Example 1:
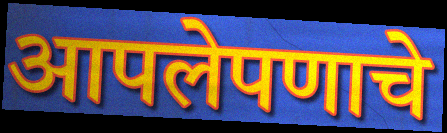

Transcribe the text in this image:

आपलेपणाचे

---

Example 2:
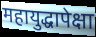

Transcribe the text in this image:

महायुद्धापेक्षा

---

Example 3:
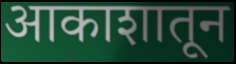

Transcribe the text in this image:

आकाशातून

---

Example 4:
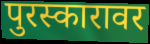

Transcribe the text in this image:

पुरस्कारावर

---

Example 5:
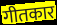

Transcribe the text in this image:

गीतकार